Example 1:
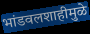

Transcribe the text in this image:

भांडवलशाहीमुळे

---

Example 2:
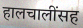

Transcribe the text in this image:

हालचालींसह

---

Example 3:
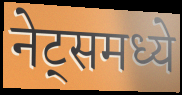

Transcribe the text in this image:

नेट्समध्ये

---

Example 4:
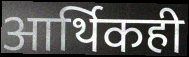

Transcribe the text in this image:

आर्थिकही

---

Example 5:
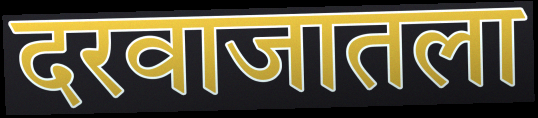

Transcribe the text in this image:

दरवाजातला